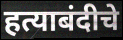
हत्याबंदीचे